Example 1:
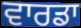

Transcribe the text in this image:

ਵਾਰਡਾ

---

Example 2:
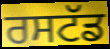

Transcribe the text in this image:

ਰਸਟੱਡ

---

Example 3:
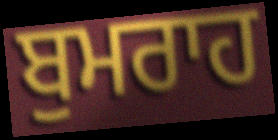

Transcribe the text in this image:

ਬੁਮਰਾਹ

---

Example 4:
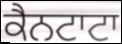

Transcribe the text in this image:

ਕੈਨਟਾਟਾ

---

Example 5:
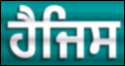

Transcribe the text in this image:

ਹੈਜਿਸ